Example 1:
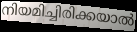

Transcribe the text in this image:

നിയമിച്ചിരിക്കയാൽ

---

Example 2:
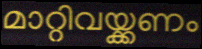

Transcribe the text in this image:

മാറ്റിവയ്ക്കണം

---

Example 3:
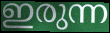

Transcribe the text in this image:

ഇരുന്ന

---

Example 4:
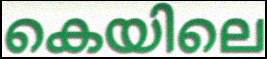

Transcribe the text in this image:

കെയിലെ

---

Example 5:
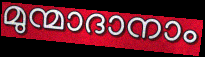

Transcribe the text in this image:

മുന്മാദാനാം